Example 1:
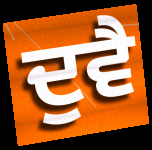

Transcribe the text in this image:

ਦੁਵੈ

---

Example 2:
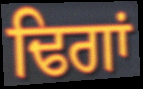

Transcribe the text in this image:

ਢਿਗਾਂ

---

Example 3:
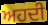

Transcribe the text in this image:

ਅਹਦੀ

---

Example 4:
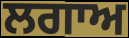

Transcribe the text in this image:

ਲਗਾਅ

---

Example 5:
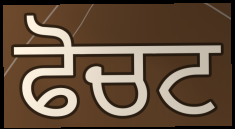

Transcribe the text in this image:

ਫੋਚਟ